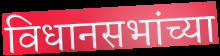
विधानसभांच्या